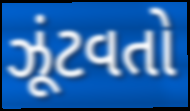
ઝૂંટવતો